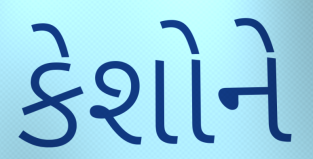
કેશોને